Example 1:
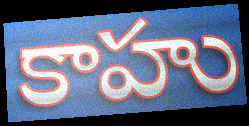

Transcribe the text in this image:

కాహు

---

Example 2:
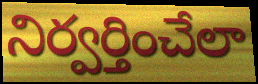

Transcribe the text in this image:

నిర్వర్తించేలా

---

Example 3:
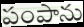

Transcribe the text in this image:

పంపాను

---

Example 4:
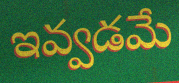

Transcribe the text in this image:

ఇవ్వడమే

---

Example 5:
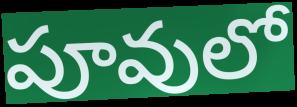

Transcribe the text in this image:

పూవులో